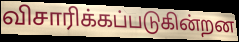
விசாரிக்கப்படுகின்றன